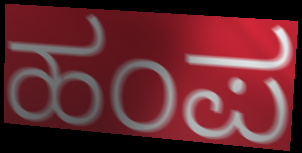
ಹಂಪ